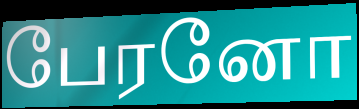
பேரனோ